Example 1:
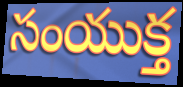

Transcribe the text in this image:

సంయుక్త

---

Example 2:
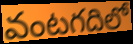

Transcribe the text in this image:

వంటగదిలో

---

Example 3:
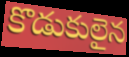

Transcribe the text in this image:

కొడుకులైన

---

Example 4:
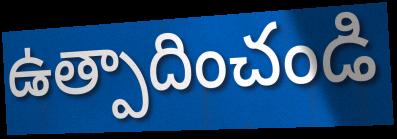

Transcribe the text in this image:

ఉత్పాదించండి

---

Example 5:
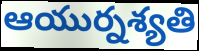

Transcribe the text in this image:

ఆయుర్నశ్యతి